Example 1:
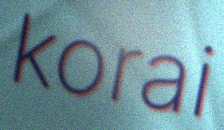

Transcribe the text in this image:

korai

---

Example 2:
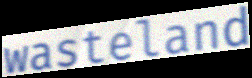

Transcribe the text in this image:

wasteland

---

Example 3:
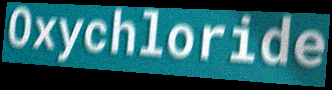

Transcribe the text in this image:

Oxychloride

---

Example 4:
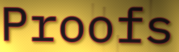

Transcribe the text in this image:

Proofs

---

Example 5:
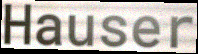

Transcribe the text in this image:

Hauser